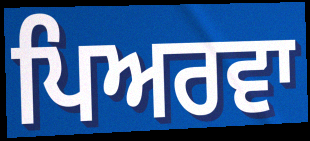
ਪਿਅਰਵਾ